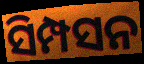
ସିମ୍ପସନ